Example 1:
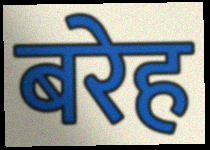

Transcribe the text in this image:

बरेह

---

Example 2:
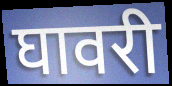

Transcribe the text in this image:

घावरी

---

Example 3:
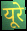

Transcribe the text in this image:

यूरे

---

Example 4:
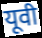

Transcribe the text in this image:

यूवी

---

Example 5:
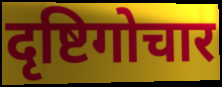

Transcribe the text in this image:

दृष्टिगोचार